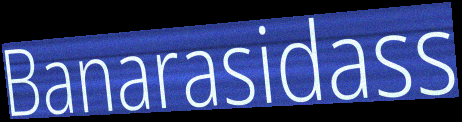
Banarasidass